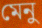
মেনু